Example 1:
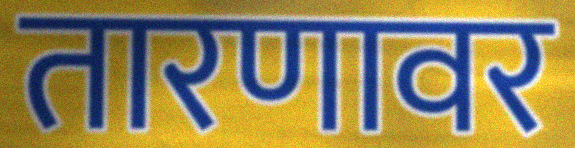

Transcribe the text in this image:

तारणावर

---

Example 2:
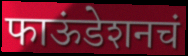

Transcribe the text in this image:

फाऊंडेशनचं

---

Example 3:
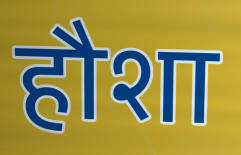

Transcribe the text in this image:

हौशा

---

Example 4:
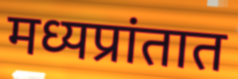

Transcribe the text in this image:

मध्यप्रांतात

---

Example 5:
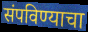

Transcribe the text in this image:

संपविण्याचा